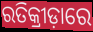
ରତିକ୍ରୀଡ଼ାରେ